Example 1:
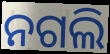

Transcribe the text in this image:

ନଗଲି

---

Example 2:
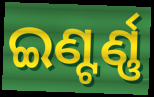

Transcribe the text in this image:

ଇଣ୍ଟର୍ଣ୍ଣ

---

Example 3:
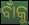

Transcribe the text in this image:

ବାଁକୁ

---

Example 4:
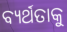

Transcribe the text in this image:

ବ୍ୟର୍ଥତାକୁ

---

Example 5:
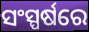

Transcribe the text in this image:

ସଂସ୍ପର୍ଷରେ